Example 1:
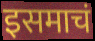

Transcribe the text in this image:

इसमाचं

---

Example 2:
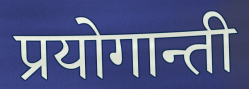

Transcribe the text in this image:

प्रयोगान्ती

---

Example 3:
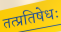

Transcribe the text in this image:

तत्प्रतिषेधः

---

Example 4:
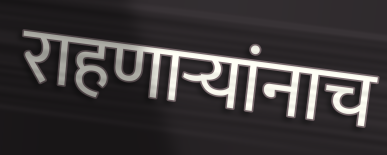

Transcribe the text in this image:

राहणाऱ्यांनाच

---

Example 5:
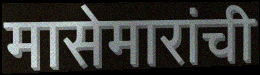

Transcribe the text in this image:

मासेमारांची